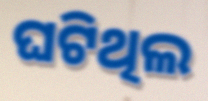
ଘଟିଥିଲ